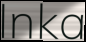
Inka